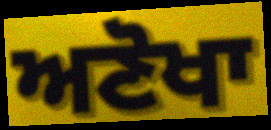
ਅਣੋਖਾ